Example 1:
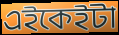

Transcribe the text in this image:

এইকেইটা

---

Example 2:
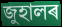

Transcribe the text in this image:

জুহালৰ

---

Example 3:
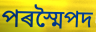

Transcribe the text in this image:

পৰস্মৈপদ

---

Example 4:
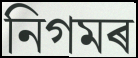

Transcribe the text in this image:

নিগমৰ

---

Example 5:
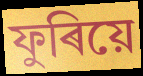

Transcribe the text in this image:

ফুৰিয়ে